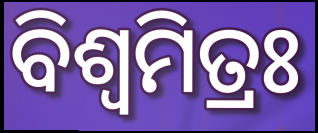
ବିଶ୍ବମିତ୍ରଃ